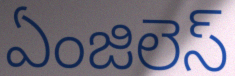
ఏంజిలెస్